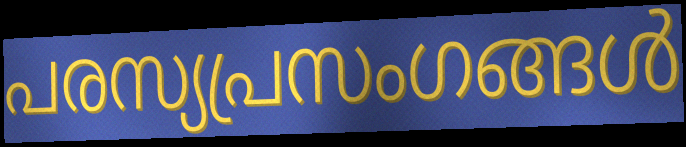
പരസ്യപ്രസംഗങ്ങൾ